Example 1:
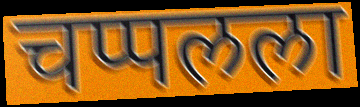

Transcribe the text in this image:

चप्पलला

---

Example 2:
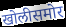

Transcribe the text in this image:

खोलीसमोर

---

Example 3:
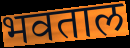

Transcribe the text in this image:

भवताल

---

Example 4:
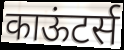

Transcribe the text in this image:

काऊंटर्स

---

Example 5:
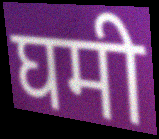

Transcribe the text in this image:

घमी